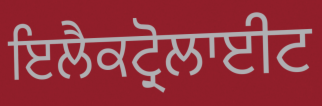
ਇਲੈਕਟ੍ਰੋਲਾਈਟ